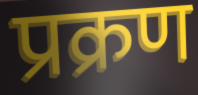
प्रक्रण